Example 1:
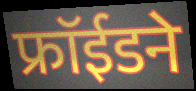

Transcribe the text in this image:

फ्रॉईडने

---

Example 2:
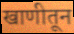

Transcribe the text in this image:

खाणीतून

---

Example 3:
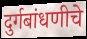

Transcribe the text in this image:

दुर्गबांधणीचे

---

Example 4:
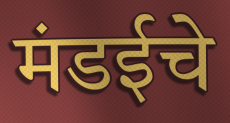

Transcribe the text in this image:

मंडईचे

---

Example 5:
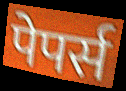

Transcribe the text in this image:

पेपर्स